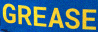
GREASE